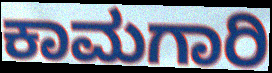
ಕಾಮಗಾರಿ